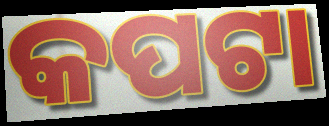
କପଟା